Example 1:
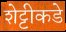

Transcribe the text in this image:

शेट्टीकडे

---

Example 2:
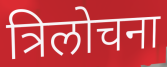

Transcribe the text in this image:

त्रिलोचना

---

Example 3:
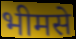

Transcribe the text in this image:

भीमसे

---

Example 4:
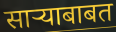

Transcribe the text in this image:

साऱ्याबाबत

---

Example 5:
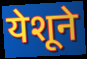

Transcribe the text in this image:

येशूने